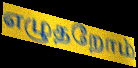
எழுதறோம்